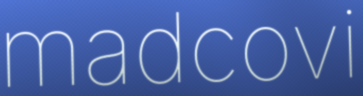
madcovi